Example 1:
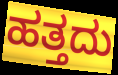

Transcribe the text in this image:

ಹತ್ತದು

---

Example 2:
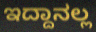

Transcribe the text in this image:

ಇದ್ದಾನಲ್ಲ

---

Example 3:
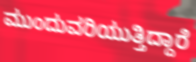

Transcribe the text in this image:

ಮುಂದುವರಿಯುತ್ತಿದ್ದಾರೆ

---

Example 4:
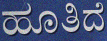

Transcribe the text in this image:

ಹೂತಿದೆ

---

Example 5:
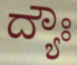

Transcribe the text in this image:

ದ್ಯೌಃ